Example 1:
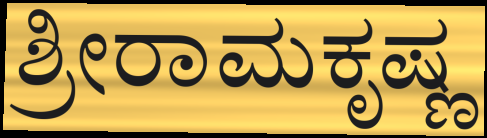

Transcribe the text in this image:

ಶ್ರೀರಾಮಕೃಷ್ಣ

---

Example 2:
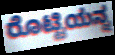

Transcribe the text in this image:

ರೊಟ್ಟಿಯನ್ನ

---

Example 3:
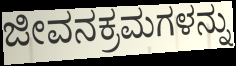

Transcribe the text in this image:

ಜೀವನಕ್ರಮಗಳನ್ನು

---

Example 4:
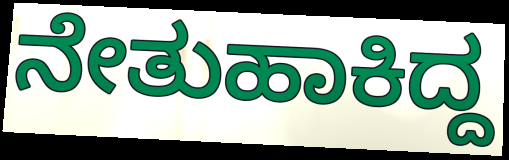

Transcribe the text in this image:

ನೇತುಹಾಕಿದ್ದ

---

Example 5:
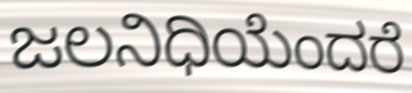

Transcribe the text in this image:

ಜಲನಿಧಿಯೆಂದರೆ